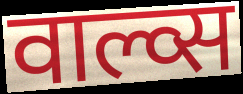
वाल्व्स